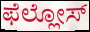
ಫೆಲ್ಲೋಸ್